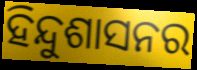
ହିନ୍ଦୁଶାସନର